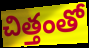
చిత్తంతో